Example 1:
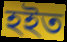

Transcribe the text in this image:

হইত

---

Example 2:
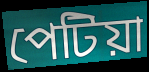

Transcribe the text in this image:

পেটিয়া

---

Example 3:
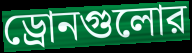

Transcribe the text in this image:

ড্রোনগুলোর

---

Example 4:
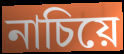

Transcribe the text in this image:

নাচিয়ে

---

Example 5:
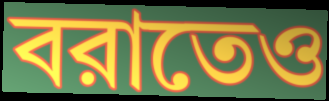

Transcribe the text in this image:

বরাতেও